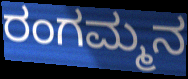
ರಂಗಮ್ಮನ